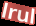
Irul